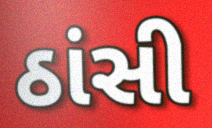
ઠાંસી